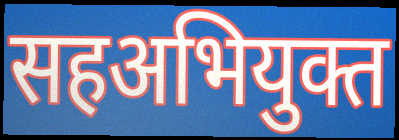
सहअभियुक्त